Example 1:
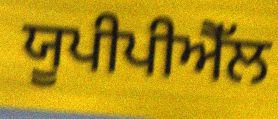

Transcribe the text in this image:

ਯੂਪੀਪੀਐੱਲ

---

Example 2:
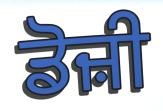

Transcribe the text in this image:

ਡੋਜ਼ੀ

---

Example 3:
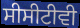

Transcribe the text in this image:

ਸੀਸੀਟੀਵੀ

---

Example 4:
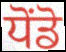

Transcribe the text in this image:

ਧੋਂਡੋ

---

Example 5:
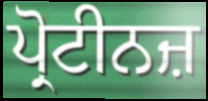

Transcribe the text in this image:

ਪ੍ਰੋਟੀਨਜ਼